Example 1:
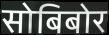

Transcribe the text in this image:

सोबिबोर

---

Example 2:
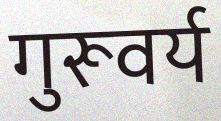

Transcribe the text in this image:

गुरूवर्य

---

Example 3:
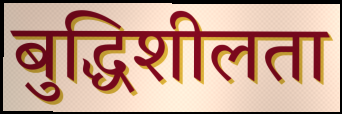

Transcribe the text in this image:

बुद्धिशीलता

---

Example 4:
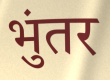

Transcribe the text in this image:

भुंतर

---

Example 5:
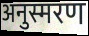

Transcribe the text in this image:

अनुस्मरण